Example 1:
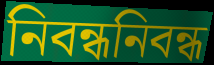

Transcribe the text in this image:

নিবন্ধনিবন্ধ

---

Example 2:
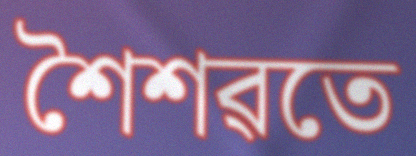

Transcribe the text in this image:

শৈশৱতে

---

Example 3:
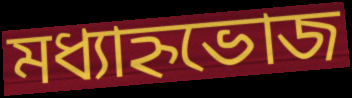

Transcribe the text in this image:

মধ্যাহ্নভোজ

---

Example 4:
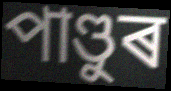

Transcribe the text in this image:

পাণ্ডুৰ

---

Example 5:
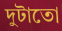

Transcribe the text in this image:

দুটাতো